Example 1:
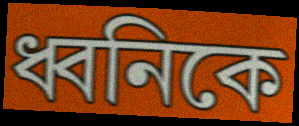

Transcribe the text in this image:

ধ্বনিকে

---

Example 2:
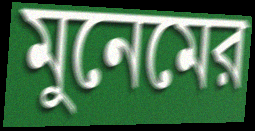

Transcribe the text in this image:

মুনেমের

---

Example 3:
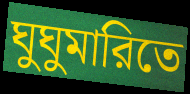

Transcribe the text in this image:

ঘুঘুমারিতে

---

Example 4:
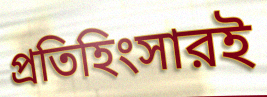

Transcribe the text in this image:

প্রতিহিংসারই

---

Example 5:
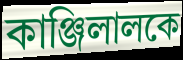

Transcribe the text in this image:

কাঞ্জিলালকে